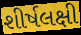
શીર્ષલક્ષી